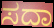
ಸದಾ